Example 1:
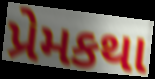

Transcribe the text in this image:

પ્રેમકથા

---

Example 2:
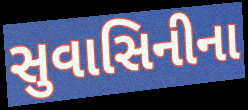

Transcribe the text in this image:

સુવાસિનીના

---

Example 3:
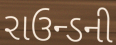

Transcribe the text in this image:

રાઉન્ડની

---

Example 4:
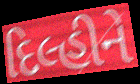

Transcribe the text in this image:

દિલ્હીને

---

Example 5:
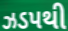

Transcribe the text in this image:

ઝડપથી